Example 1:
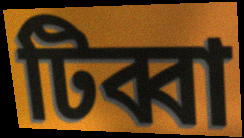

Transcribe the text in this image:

টিব্বা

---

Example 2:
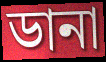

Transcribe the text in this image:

ডানা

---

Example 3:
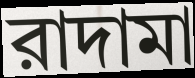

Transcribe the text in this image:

রাদামা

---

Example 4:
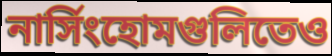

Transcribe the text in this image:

নার্সিংহোমগুলিতেও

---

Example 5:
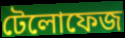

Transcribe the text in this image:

টেলোফেজ